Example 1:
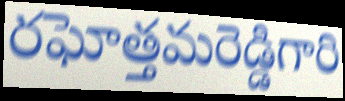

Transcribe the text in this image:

రఘోత్తమరెడ్డిగారి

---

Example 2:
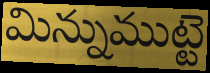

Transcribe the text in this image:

మిన్నుముట్టె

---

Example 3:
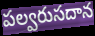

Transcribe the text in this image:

పల్వరుసదాన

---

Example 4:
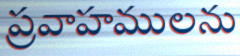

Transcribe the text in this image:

ప్రవాహములను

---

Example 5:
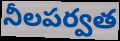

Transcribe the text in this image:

నీలపర్వత